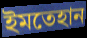
ইমতেহান